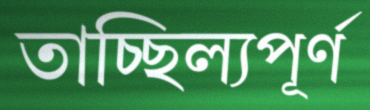
তাচ্ছিল্যপূর্ণ